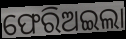
ଫେରିଅଇଲା